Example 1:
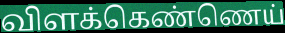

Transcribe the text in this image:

விளக்கெண்ணெய்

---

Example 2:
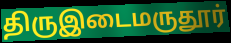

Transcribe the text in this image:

திருஇடைமருதூர்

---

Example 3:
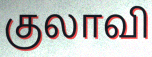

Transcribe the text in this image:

குலாவி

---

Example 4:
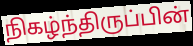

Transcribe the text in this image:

நிகழ்ந்திருப்பின்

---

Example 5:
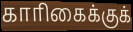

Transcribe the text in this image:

காரிகைக்குக்